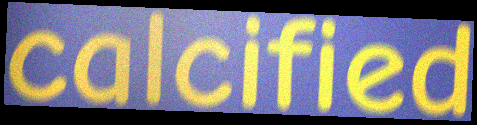
calcified